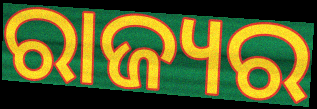
ରାଜ୍ୟର